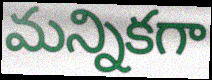
మన్నికగా